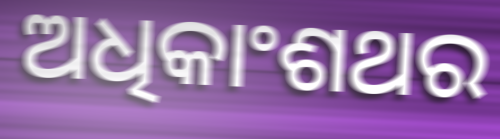
ଅଧିକାଂଶଥର